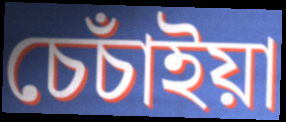
চেচাঁইয়া